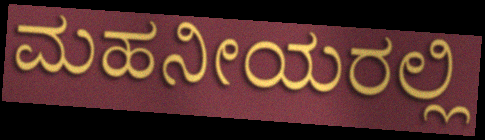
ಮಹನೀಯರಲ್ಲಿ